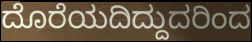
ದೊರೆಯದಿದ್ದುದರಿಂದ